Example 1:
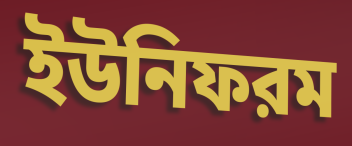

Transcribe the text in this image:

ইউনিফরম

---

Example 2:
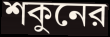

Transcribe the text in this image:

শকুনের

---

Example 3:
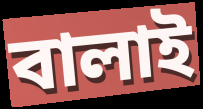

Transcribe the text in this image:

বালাই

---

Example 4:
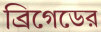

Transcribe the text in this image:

ব্রিগেডের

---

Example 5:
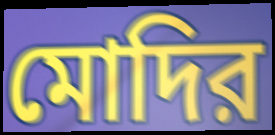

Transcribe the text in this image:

মোদির